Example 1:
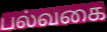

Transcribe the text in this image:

பல்வகை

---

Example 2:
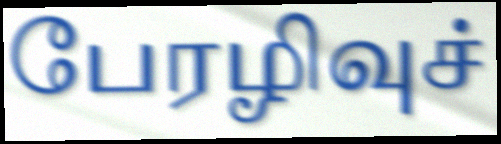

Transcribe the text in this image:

பேரழிவுச்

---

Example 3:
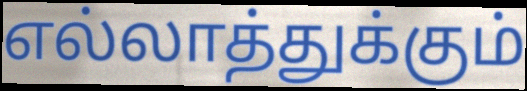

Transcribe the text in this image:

எல்லாத்துக்கும்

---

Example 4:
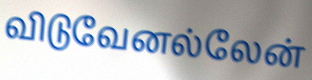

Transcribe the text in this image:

விடுவேனல்லேன்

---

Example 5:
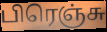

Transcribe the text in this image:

பிரெஞ்சு